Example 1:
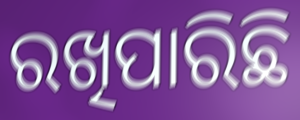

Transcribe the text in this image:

ରଖିପାରିଛି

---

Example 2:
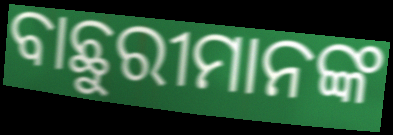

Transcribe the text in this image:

ବାଛୁରୀମାନଙ୍କ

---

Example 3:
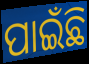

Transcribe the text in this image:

ପାଇଁଛି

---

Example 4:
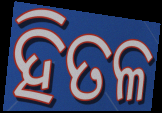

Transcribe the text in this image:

ହିତଳ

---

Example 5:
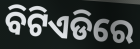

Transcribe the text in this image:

ବିଟିଏଡିରେ